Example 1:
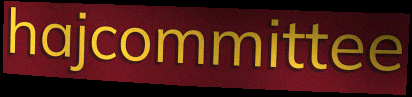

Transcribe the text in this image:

hajcommittee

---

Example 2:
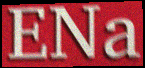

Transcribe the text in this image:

ENa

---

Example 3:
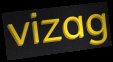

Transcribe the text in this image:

vizag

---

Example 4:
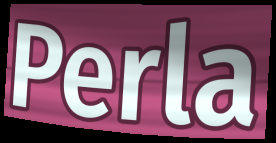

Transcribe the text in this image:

Perla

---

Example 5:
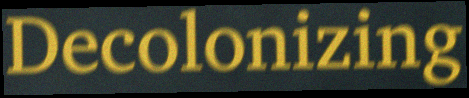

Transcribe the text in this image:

Decolonizing